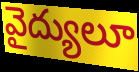
వైద్యులూ